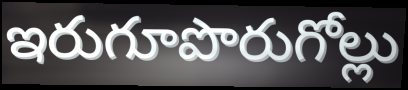
ఇరుగూపొరుగోల్లు